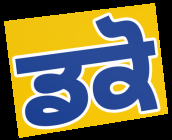
ਡਕੋ